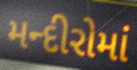
મન્દીરોમાં